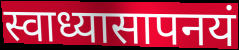
स्वाध्यासापनयं